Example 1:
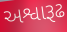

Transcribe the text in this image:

અશ્વારૂઢ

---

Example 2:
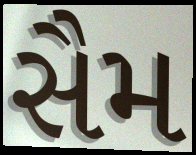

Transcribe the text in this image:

સૈમ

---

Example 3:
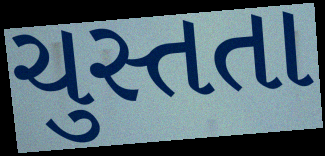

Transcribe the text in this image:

ચુસ્તતા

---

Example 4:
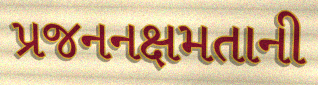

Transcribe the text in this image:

પ્રજનનક્ષમતાની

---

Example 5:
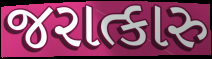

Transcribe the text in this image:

જરાત્કારુ